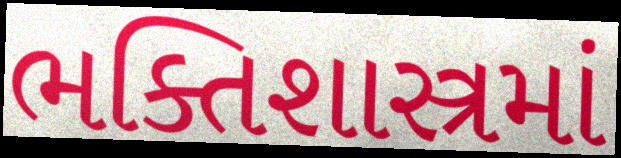
ભક્તિશાસ્ત્રમાં